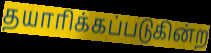
தயாரிக்கப்படுகின்ற